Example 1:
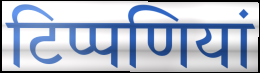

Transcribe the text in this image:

टिप्‍पणियां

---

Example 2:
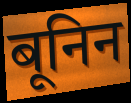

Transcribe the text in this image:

बूनिन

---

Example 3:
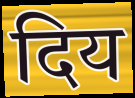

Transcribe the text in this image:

दिय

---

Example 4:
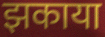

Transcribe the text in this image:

झकाया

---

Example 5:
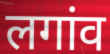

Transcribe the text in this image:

लगांव